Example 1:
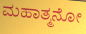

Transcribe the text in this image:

ಮಹಾತ್ಮನೋ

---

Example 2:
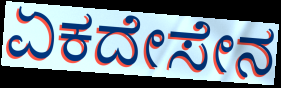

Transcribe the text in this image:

ಏಕದೇಸೇನ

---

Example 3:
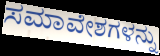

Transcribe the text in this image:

ಸಮಾವೇಶಗಳನ್ನು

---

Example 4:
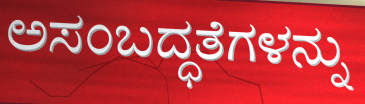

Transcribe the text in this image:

ಅಸಂಬದ್ಧತೆಗಳನ್ನು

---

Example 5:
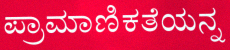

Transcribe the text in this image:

ಪ್ರಾಮಾಣಿಕತೆಯನ್ನ